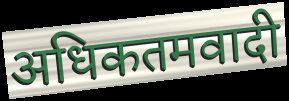
अधिकतमवादी